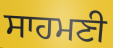
ਸਾਹਮਣੀ